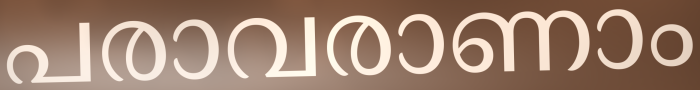
പരാവരാണാം